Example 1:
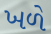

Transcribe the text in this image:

ખળે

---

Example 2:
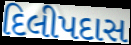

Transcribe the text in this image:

દિલીપદાસ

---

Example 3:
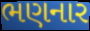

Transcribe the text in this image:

ભણનાર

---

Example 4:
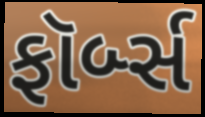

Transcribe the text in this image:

ફૉર્બ્સ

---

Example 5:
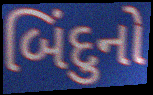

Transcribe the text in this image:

બિંદુનો